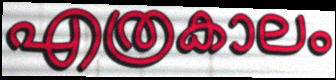
എത്രകാലം